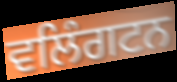
ਵਲਿੰਗਟਨ